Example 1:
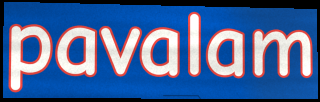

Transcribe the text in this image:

pavalam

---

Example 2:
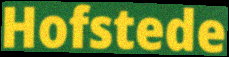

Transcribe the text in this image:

Hofstede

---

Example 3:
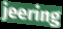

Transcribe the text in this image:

jeering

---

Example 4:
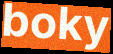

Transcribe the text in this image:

boky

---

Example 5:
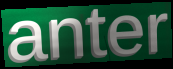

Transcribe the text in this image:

anter